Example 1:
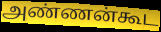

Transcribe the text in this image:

அண்ணன்கூட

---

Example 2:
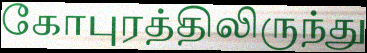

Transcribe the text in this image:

கோபுரத்திலிருந்து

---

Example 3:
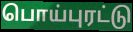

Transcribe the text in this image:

பொய்புரட்டு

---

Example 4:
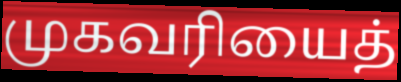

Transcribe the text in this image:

முகவரியைத்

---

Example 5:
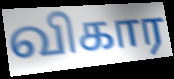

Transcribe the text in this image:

விகார